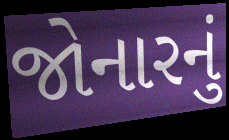
જોનારનું